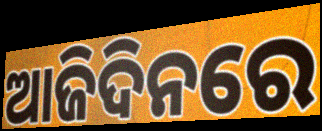
ଆଜିଦିନରେ